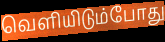
வெளியிடும்போது